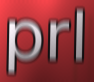
prl